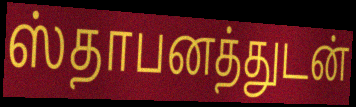
ஸ்தாபனத்துடன்